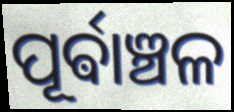
ପୂର୍ଵାଞ୍ଚଳ